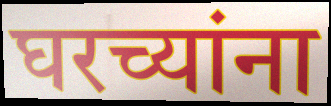
घरच्यांना